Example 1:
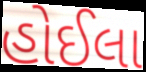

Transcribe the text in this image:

હોઈલા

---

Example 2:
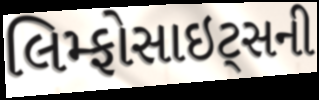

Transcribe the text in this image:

લિમ્ફોસાઇટ્સની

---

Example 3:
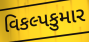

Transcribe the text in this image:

વિકલ્પકુમાર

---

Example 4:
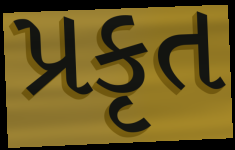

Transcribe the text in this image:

પ્રકૃત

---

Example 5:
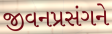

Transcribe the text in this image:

જીવનપ્રસંગને